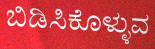
ಬಿಡಿಸಿಕೊಳ್ಳುವ